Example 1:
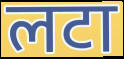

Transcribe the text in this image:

लटा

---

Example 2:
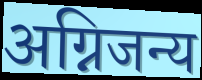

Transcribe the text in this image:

अग्निजन्य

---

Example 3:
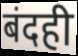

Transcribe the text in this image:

बंदही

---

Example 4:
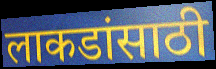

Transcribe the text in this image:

लाकडांसाठी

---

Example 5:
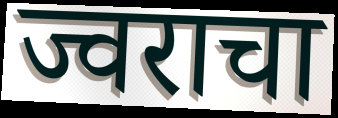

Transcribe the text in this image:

ज्वराचा